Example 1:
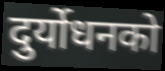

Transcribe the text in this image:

दुर्योधनको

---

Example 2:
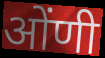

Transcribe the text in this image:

ओंणी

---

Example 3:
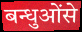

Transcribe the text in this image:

बन्धुओंसे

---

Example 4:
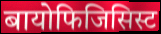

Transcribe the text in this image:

बायोफिजिसिस्ट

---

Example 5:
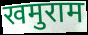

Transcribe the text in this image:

खमुराम